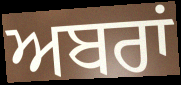
ਅਬਰਾਂ